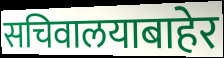
सचिवालयाबाहेर